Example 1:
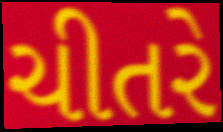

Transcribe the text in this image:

ચીતરે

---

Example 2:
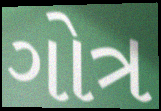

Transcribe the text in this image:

ગોત્ર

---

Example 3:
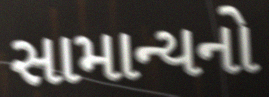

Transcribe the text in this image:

સામાન્યનો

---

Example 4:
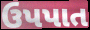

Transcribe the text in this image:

ઉપપાત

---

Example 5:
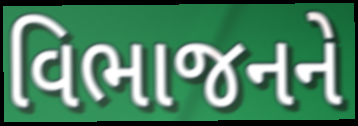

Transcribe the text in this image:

વિભાજનને